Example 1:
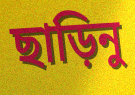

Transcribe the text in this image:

ছাড়িনু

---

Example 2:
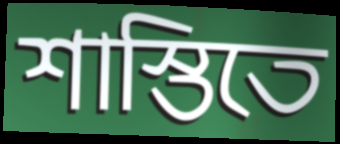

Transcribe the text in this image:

শাস্তিতে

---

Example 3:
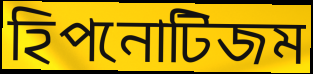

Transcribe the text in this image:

হিপনোটিজম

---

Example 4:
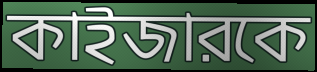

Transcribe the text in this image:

কাইজারকে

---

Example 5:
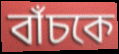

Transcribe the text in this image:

বাঁচকে